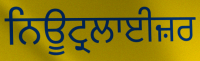
ਨਿਊਟ੍ਰਲਾਈਜ਼ਰ